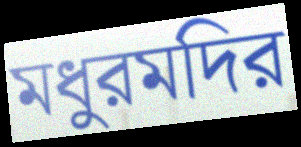
মধুরমদির